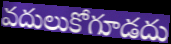
వదులుకోగూడదు